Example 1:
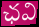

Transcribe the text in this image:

ఛవి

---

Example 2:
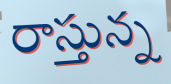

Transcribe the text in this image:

రాస్తున్న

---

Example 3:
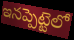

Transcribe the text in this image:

ఇనప్పెట్టెలో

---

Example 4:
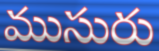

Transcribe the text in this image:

ముసురు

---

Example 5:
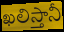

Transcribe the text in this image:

ఖలిస్తానీ